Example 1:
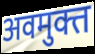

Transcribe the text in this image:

अवमुक्त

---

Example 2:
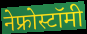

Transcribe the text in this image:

नेफ्रोस्टॉमी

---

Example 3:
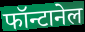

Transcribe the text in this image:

फॉन्टानेल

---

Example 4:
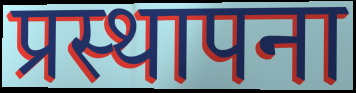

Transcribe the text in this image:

प्रस्थापना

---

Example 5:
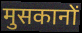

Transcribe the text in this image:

मुसकानों